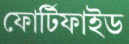
ফোর্টিফাইড